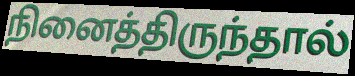
நினைத்திருந்தால்